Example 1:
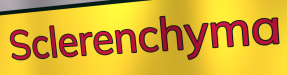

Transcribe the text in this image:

Sclerenchyma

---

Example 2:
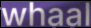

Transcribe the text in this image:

whaal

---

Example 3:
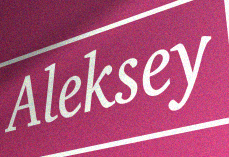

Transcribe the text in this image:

Aleksey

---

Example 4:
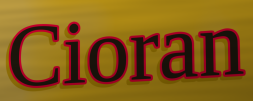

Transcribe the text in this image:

Cioran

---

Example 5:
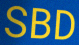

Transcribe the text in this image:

SBD